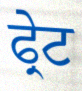
ਫ੍ਰੇਟ